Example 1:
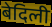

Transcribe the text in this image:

बेदिली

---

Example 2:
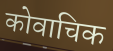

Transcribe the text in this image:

कोवाचिक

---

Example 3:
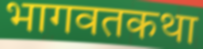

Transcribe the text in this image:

भागवतकथा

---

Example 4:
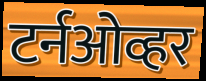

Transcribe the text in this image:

टर्नओव्हर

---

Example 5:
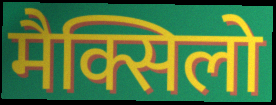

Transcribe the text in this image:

मैक्सिलो